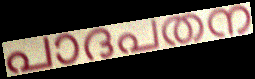
പാദപതന